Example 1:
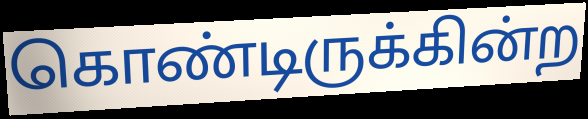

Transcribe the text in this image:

கொண்டிருக்கின்ற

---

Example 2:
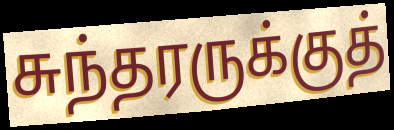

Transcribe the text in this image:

சுந்தரருக்குத்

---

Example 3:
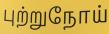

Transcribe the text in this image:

புற்றுநோய்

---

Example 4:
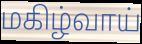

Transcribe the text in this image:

மகிழ்வாய்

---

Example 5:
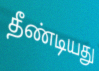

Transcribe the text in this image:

தீண்டியது